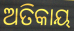
ଅତିକାୟ